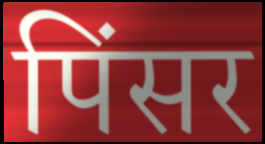
पिंसर